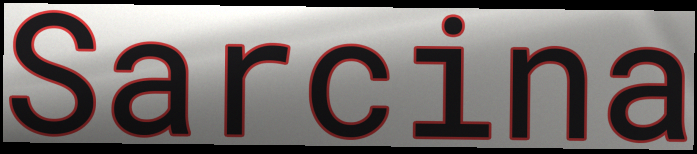
Sarcina